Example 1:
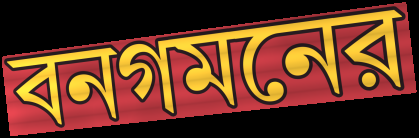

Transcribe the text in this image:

বনগমনের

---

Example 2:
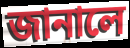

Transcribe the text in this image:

জানালে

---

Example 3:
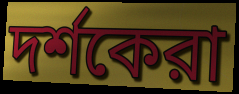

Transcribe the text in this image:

দর্শকেরা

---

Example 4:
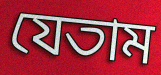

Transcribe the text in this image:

যেতাম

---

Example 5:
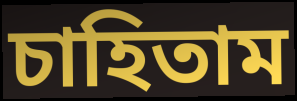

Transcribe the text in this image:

চাহিতাম